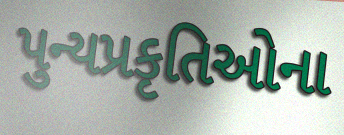
પુન્યપ્રકૃતિઓના